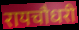
रायचौधरी